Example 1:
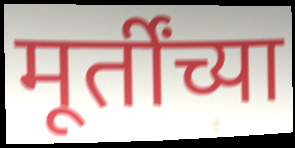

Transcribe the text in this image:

मूर्तींच्या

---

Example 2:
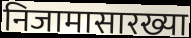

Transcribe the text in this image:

निजामासारख्या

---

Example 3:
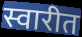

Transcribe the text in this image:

स्वारीत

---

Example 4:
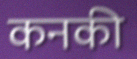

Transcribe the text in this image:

कनकी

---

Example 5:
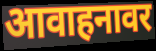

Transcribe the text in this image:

आवाहनावर